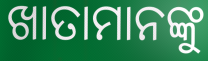
ଖାତାମାନଙ୍କୁ